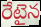
రేటైన